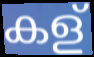
കള്